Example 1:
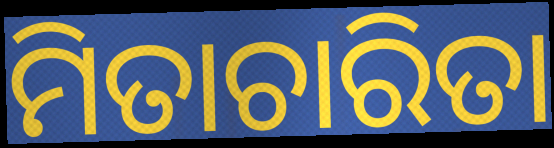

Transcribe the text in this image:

ମିତାଚାରିତା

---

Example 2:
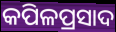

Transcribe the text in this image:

କପିଳପ୍ରସାଦ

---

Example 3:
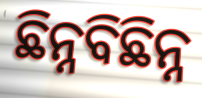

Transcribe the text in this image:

ଛିନ୍ନବିଛିନ୍ନ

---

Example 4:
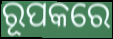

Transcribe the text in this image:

ରୂପକରେ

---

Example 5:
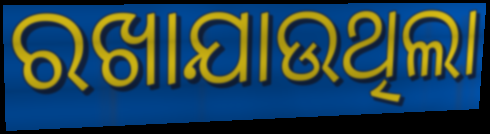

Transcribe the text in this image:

ରଖାଯାଉଥିଲା